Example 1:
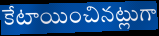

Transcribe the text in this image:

కేటాయించినట్లుగా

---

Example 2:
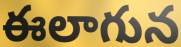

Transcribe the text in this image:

ఈలాగున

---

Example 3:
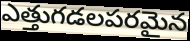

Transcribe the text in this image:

ఎత్తుగడలపరమైన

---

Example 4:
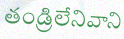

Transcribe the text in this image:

తండ్రిలేనివాని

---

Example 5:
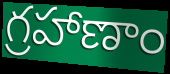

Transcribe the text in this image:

గ్రహాణాం